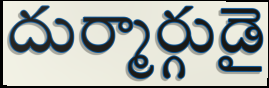
దుర్మార్గుడై